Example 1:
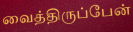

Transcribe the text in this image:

வைத்திருப்பேன்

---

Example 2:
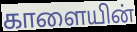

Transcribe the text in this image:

காளையின்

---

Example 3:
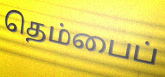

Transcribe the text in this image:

தெம்பைப்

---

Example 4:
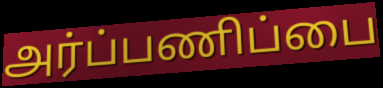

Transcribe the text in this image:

அர்ப்பணிப்பை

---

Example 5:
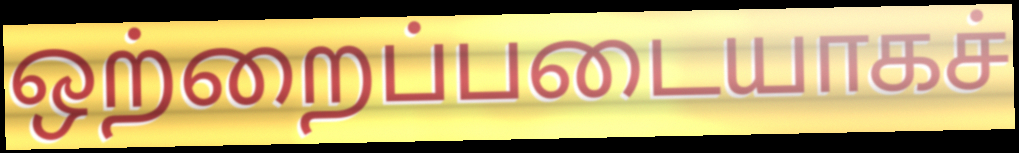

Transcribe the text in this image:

ஒற்றைப்படையாகச்